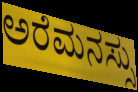
ಅರೆಮನಸ್ಸು